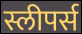
स्लीपर्स